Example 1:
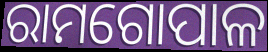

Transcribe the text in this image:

ରାମଗୋପାଳ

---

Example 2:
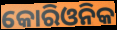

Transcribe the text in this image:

କୋରିଓନିକ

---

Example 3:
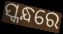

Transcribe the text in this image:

ସ୍କନ୍ଧରେ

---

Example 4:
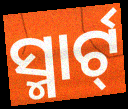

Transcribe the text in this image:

ସ୍ମାର୍ଟ୍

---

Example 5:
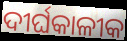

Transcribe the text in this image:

ଦୀର୍ଘକାଳୀକ